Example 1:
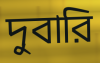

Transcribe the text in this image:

দুবারি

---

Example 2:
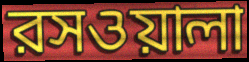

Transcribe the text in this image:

রসওয়ালা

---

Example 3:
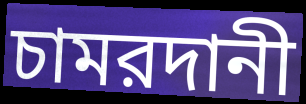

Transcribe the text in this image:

চামরদানী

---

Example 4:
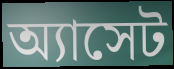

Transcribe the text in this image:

অ্যাসেট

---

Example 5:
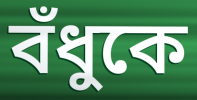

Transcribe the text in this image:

বঁধুকে